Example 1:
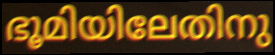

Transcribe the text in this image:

ഭൂമിയിലേതിനു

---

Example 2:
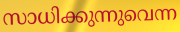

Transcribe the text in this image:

സാധിക്കുന്നുവെന്ന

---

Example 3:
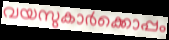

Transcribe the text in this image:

വയസുകാർക്കൊപ്പം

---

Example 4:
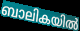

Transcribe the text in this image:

ബാലികയിൽ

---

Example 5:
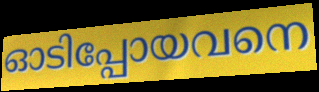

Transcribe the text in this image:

ഓടിപ്പോയവനെ